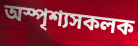
অস্পৃশ্যসকলক